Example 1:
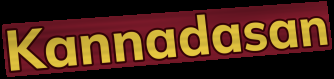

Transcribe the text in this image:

Kannadasan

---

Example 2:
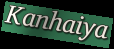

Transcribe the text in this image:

Kanhaiya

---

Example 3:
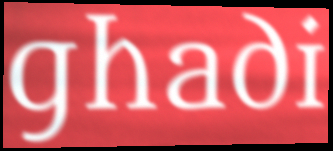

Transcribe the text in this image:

ghadi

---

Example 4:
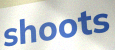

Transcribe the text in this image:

shoots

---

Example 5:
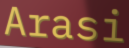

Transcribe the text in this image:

Arasi